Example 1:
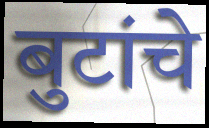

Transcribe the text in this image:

बुटांचे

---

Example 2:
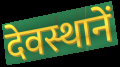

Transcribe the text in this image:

देवस्थानें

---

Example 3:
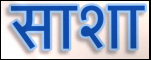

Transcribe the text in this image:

साशा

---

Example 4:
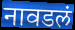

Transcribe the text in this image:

नावडलं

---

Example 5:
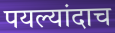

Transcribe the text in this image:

पयल्यांदाच